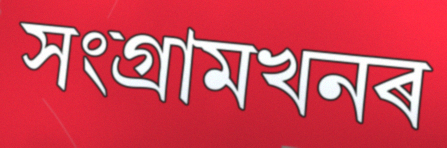
সংগ্ৰামখনৰ